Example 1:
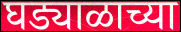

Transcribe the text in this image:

घड्याळाच्या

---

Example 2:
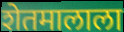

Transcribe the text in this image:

शेतमालाला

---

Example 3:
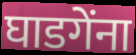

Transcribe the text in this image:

घाडगेंना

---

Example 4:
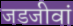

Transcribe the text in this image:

जडजीवां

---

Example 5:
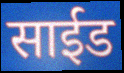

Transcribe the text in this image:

साईड